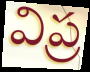
విప్ర